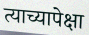
त्याच्यापेक्षा